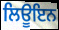
ਲਿਊਇਨ